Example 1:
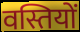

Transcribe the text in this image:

वस्तियों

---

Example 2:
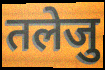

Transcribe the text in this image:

तलेजु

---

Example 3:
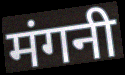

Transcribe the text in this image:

मंगनी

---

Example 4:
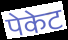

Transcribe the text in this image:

पेकेट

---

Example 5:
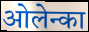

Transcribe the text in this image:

ओलेन्का